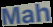
Mah